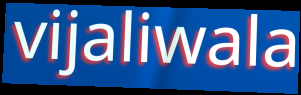
vijaliwala